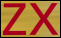
zx